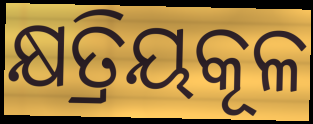
କ୍ଷତ୍ରିୟକୂଳ